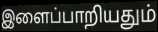
இளைப்பாறியதும்